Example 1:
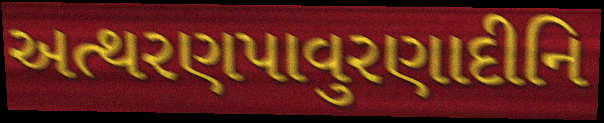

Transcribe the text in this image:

અત્થરણપાવુરણાદીનિ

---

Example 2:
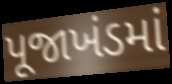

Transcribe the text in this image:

પૂજાખંડમાં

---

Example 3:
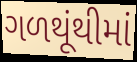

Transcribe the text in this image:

ગળથૂંથીમાં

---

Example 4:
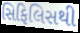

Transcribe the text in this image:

સિફિલિસથી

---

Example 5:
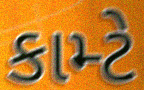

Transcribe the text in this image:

કામ્ટે